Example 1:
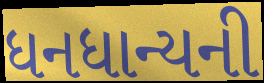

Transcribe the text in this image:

ધનધાન્યની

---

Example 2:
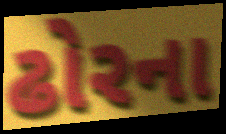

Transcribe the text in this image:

ઢોરના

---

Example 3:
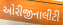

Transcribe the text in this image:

ઓરીજીનાલીટી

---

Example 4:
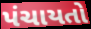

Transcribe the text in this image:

પંચાયતો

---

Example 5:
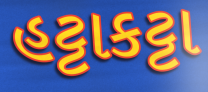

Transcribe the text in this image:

હટ્ટાકટ્ટા